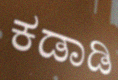
ಕಡಾಡಿ